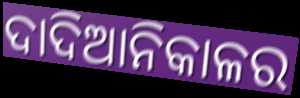
ଦାଦିଆନିକାଳର